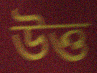
উত্ত